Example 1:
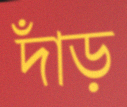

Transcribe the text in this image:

দাঁড়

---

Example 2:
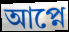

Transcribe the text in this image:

আপ্নে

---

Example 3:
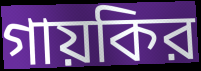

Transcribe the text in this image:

গায়কির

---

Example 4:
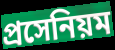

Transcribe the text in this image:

প্রসেনিয়ম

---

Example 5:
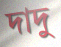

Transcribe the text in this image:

দাদু